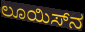
ಲೂಯಿಸ್‌ನ